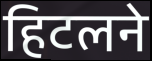
हिटलने